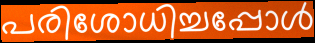
പരിശോധിച്ചപ്പോൾ